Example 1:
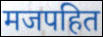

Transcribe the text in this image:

मजपहित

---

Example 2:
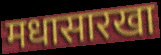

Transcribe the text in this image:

मधासारखा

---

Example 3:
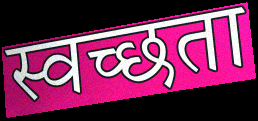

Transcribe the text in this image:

स्वच्छता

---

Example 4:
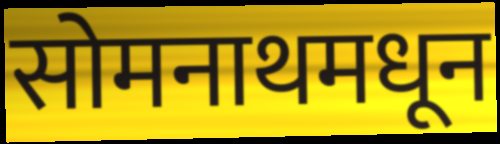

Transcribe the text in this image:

सोमनाथमधून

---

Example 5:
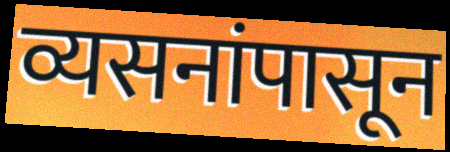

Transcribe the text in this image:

व्यसनांपासून